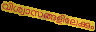
വിശ്വാസങ്ങളിലേക്കും